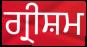
ਗ੍ਰੀਸ਼ਮ